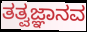
ತತ್ವಜ್ಞಾನವ